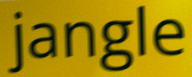
jangle